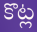
కొట్ల